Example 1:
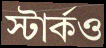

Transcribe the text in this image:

স্টার্কও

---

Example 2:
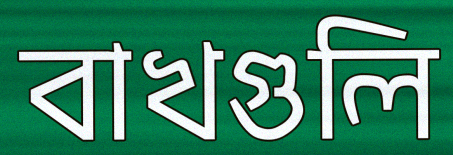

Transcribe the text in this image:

বাখগুলি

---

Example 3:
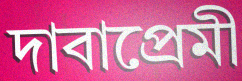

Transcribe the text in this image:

দাবাপ্রেমী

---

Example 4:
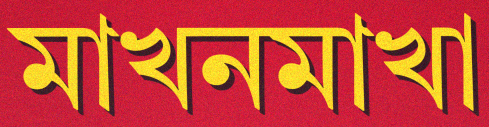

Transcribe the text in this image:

মাখনমাখা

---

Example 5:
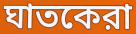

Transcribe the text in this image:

ঘাতকেরা